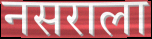
नसराला